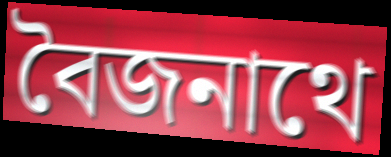
বৈজনাথে